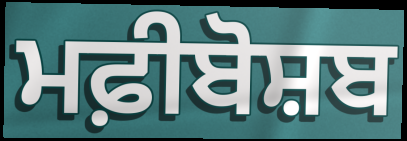
ਮਫ਼ੀਬੋਸ਼ਬ